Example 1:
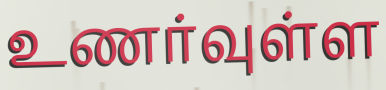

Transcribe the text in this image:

உணர்வுள்ள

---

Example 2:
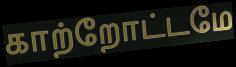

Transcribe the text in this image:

காற்றோட்டமே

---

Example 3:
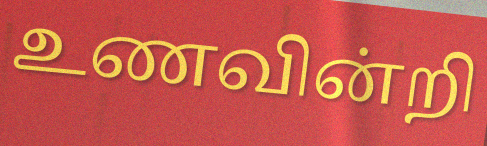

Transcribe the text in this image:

உணவின்றி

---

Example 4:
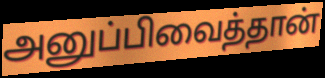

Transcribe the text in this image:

அனுப்பிவைத்தான்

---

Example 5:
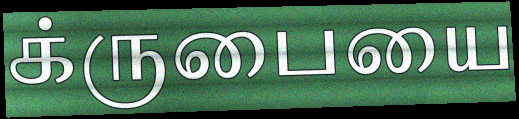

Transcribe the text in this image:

க்ருபையை